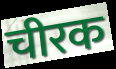
चीरक